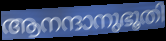
ആനന്ദാനുഭൂതി